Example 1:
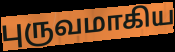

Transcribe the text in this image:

புருவமாகிய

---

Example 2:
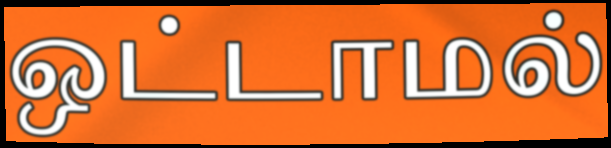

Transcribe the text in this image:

ஒட்டாமல்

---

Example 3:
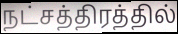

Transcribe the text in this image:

நட்சத்திரத்தில்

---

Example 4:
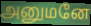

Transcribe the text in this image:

அனுமனே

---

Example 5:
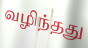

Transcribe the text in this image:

வழிந்தது